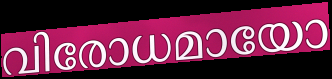
വിരോധമായോ